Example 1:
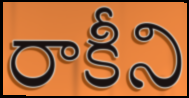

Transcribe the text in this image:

రాకీని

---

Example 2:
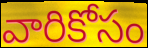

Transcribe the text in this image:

వారికోసం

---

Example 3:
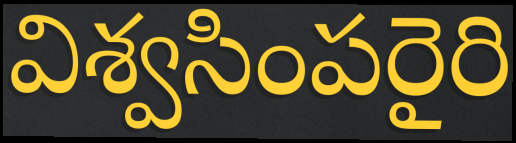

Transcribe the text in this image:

విశ్వసింపరైరి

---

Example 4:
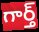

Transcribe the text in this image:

గార్త్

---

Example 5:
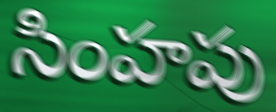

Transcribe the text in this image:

సింహపు